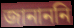
জানাননি